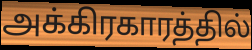
அக்கிரகாரத்தில்